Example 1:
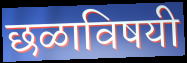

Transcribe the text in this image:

छळाविषयी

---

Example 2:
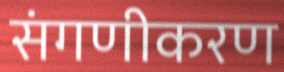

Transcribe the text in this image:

संगणीकरण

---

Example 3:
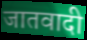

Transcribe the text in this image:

जातवादी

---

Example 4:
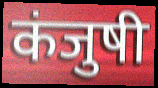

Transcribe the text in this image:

कंजुषी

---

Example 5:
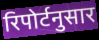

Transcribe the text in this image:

रिपोर्टनुसार